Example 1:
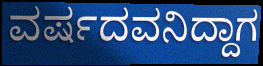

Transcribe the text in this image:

ವರ್ಷದವನಿದ್ದಾಗ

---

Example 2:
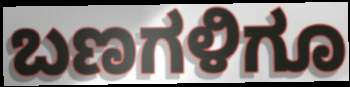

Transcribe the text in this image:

ಬಣಗಳಿಗೂ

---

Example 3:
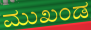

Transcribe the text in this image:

ಮುಖಂಡ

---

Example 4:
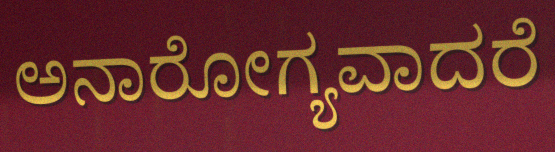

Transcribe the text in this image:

ಅನಾರೋಗ್ಯವಾದರೆ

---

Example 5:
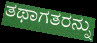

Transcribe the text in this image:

ತಥಾಗತರನ್ನು